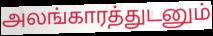
அலங்காரத்துடனும்